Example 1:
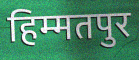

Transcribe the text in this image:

हिम्मतपुर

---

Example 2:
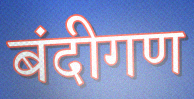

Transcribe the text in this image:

बंदीगण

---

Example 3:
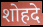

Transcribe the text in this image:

शोहदे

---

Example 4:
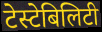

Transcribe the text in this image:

टेस्टेबिलिटी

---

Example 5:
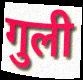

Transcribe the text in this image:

गुली